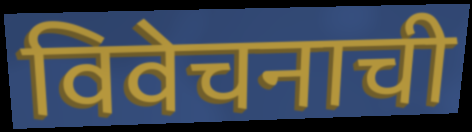
विवेचनाची